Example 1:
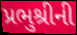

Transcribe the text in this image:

પ્રભુશ્રીની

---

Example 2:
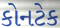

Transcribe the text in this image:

કોનટેક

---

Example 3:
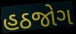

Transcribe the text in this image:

હઠજોગ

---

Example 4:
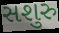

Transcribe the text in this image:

સશુરુ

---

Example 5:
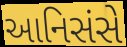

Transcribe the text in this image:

આનિસંસે